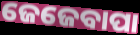
ଜେଜେବାପା